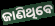
ଜାଣିଥିଵେ